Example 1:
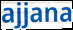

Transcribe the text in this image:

ajjana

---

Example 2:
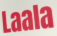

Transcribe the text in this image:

Laala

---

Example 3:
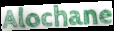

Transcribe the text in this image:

Alochane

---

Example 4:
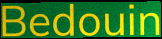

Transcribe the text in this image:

Bedouin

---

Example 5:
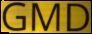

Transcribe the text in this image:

GMD